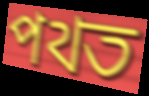
পথত